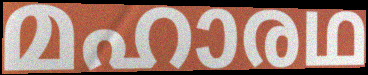
മഹാരഥ